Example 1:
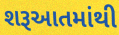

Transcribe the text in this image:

શરૂઆતમાંથી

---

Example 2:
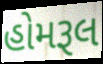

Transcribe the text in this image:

હોમરૂલ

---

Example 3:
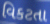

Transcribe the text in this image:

વિકટતા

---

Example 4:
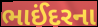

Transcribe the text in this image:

ભાઈંદરના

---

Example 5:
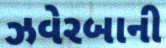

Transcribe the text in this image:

ઝવેરબાની